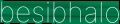
besibhalo